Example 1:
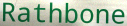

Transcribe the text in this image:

Rathbone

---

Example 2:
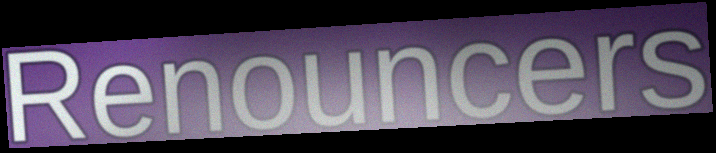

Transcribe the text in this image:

Renouncers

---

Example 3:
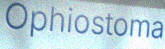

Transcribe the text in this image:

Ophiostoma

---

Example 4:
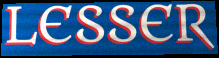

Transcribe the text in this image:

LESSER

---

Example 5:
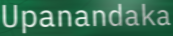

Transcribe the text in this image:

Upanandaka